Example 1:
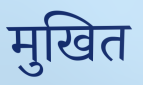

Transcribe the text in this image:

मुखित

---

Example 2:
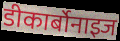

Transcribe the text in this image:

डीकार्बोनाइज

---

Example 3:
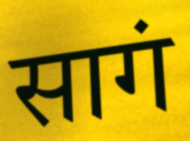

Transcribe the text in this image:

सागं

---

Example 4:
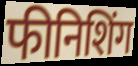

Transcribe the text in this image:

फीनिशिंग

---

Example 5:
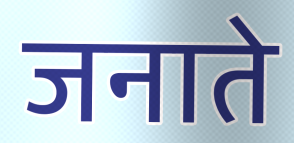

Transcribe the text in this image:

जनाते